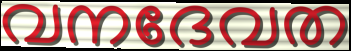
വനദേവത